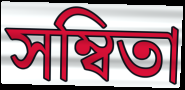
সম্বিতা